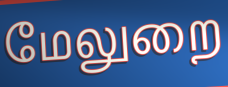
மேலுறை